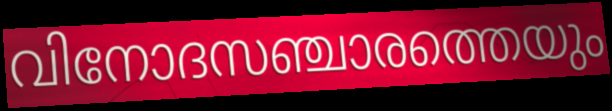
വിനോദസഞ്ചാരത്തെയും